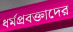
ধর্মপ্রবক্তাদের